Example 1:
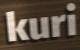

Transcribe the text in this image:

kuri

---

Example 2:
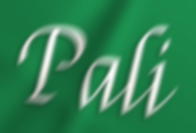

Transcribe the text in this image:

Pali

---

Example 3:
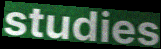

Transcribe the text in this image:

studies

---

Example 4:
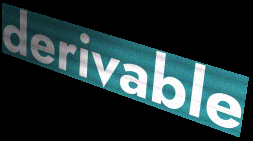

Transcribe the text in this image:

derivable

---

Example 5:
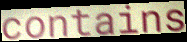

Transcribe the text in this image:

contains